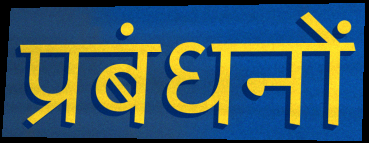
प्रबंधनों